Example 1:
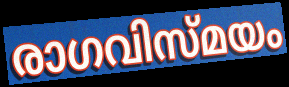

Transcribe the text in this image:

രാഗവിസ്മയം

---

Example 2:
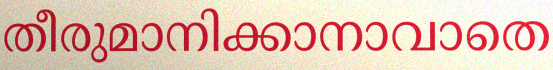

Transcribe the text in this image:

തീരുമാനിക്കാനാവാതെ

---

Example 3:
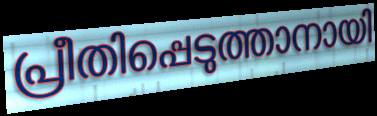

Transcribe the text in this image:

പ്രീതിപ്പെടുത്താനായി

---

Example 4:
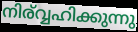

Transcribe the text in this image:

നിര്വ്വഹിക്കുന്നു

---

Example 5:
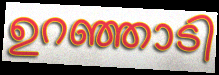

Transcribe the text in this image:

ഉറഞ്ഞാടി